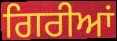
ਗਿਰੀਆਂ